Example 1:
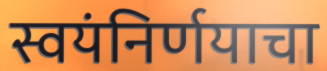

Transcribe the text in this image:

स्वयंनिर्णयाचा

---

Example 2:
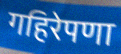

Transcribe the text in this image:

गहिरेपणा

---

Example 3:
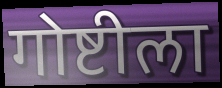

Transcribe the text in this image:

गोष्टीला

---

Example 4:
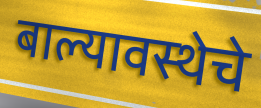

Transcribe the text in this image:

बाल्यावस्थेचे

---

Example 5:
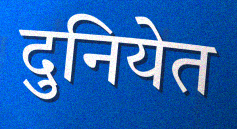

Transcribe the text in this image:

दुनियेत